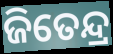
ଜିତେନ୍ଦ୍ର